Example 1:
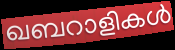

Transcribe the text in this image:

ഖബറാളികൾ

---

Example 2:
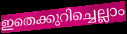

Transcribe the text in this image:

ഇതെക്കുറിച്ചെല്ലാം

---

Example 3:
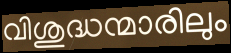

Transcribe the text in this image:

വിശുദ്ധന്മാരിലും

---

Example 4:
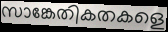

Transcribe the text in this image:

സാങ്കേതികതകളെ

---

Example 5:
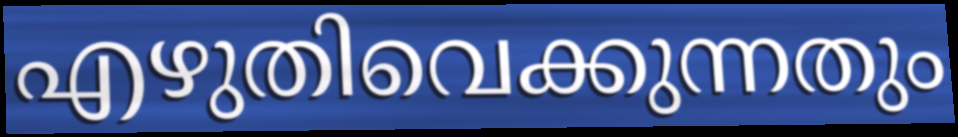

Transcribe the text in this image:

എഴുതിവെക്കുന്നതും